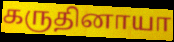
கருதினாயா